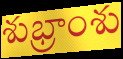
శుభ్రాంశు